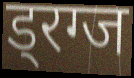
ड्रग्ज